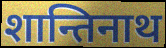
शान्तिनाथ